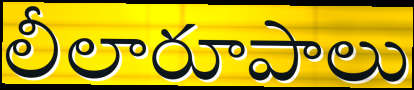
లీలారూపాలు